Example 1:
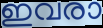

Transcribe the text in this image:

ഇവരാ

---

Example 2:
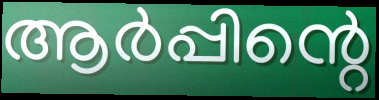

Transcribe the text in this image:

ആർപ്പിന്റെ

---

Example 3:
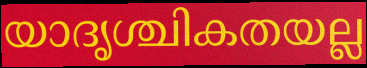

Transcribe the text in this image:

യാദൃശ്ചികതയല്ല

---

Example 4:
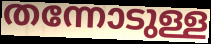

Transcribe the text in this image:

തന്നോടുള്ള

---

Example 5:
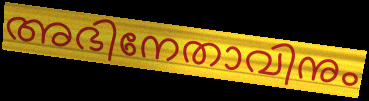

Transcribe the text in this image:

അഭിനേതാവിനും